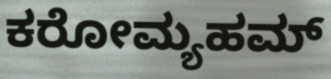
ಕರೋಮ್ಯಹಮ್